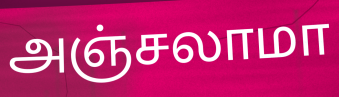
அஞ்சலாமா